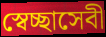
স্বেচ্ছাসেবী